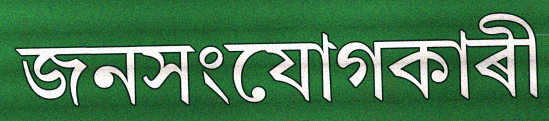
জনসংযোগকাৰী